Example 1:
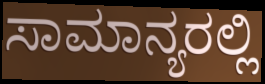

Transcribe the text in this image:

ಸಾಮಾನ್ಯರಲ್ಲಿ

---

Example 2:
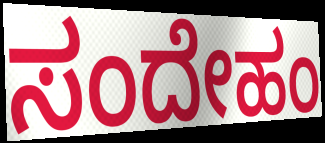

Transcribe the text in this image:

ಸಂದೇಹಂ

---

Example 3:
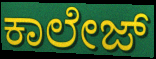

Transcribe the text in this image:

ಕಾಲೇಜ್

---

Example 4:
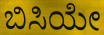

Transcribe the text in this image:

ಬಿಸಿಯೇ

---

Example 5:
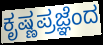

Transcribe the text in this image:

ಕೃಷ್ಣಪ್ರಜ್ಞೆಂದ